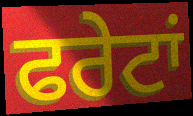
ਫਰੇਟਾਂ